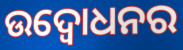
ଉଦ୍ବୋଧନର